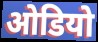
ओडियो